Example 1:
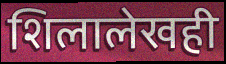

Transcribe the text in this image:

शिलालेखही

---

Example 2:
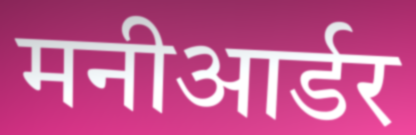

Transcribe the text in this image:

मनीआर्डर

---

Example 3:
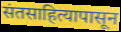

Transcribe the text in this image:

संतसाहित्यापासून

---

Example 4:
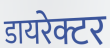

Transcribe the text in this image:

डायरेक्टर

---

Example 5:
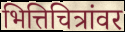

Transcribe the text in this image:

भित्तिचित्रांवर